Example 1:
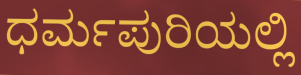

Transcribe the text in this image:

ಧರ್ಮಪುರಿಯಲ್ಲಿ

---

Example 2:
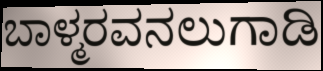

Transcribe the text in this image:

ಬಾಳ್ಮರವನಲುಗಾಡಿ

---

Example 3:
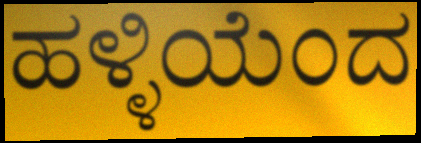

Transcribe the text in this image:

ಹಳ್ಳಿಯೆಂದ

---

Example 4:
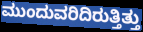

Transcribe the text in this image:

ಮುಂದುವರಿದಿರುತ್ತಿತ್ತು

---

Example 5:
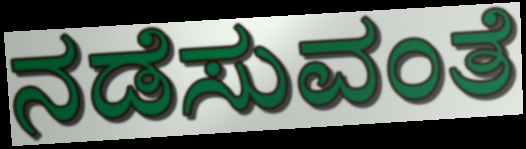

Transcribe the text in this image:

ನಡೆಸುವಂತೆ